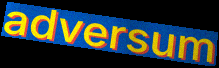
adversum